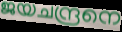
ജയചന്ദ്രനെ